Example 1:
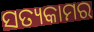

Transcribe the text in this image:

ସତ୍ୟକାମର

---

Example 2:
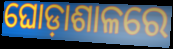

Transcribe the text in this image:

ଘୋଡ଼ାଶାଳରେ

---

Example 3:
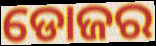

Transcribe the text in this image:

ଡୋଜର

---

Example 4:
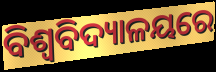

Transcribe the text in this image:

ବିଶ୍ବବିଦ୍ୟାଳୟରେ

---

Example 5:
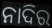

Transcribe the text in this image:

ନାଦିର